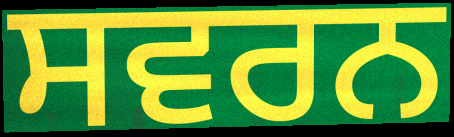
ਸਵਰਨ